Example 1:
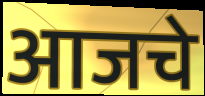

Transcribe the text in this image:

आजचे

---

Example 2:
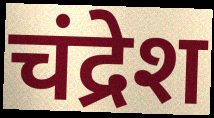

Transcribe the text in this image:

चंद्रेश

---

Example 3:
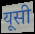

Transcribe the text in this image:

यूसी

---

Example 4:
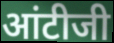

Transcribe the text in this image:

आंटीजी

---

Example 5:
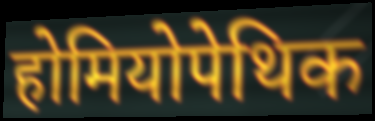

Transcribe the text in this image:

होमियोपेथिक